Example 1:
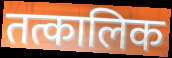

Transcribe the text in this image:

तत्कालिक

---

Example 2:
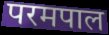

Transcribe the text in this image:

परमपाल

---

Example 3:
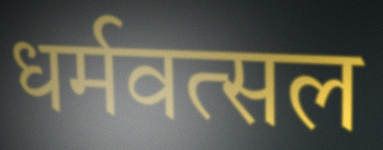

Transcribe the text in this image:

धर्मवत्सल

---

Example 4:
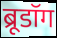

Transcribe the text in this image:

ब्रूडॉग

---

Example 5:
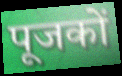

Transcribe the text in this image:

पूजकों